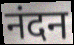
नंदन